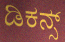
ಡಿಕನ್ಸ್